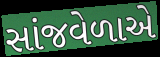
સાંજવેળાએ